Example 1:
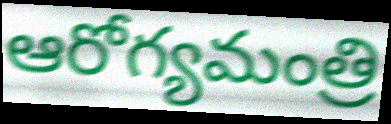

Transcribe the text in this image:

ఆరోగ్యమంత్రి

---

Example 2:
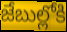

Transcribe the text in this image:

జేబుల్లోకి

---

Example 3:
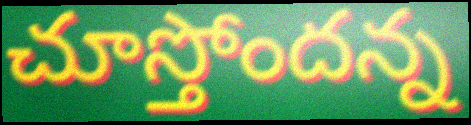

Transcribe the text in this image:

చూస్తోందన్న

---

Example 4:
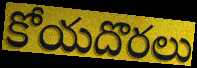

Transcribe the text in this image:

కోయదొరలు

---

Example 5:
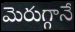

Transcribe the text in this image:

మెరుగ్గానే